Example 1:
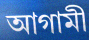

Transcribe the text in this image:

আগামী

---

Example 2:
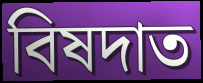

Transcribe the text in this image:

বিষদাত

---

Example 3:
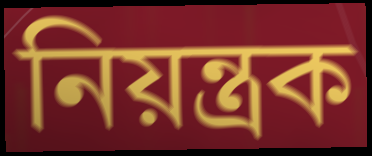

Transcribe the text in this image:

নিয়ন্ত্রক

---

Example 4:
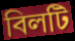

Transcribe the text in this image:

বিলটি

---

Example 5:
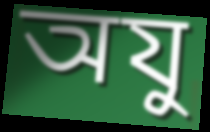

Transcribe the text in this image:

অযু